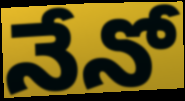
నేనో